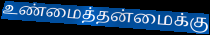
உண்மைத்தன்மைக்கு